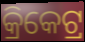
କ୍ରିକେଟ୍ର